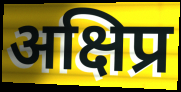
अक्षिप्र